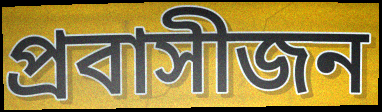
প্রবাসীজন